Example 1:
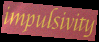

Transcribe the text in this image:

impulsivity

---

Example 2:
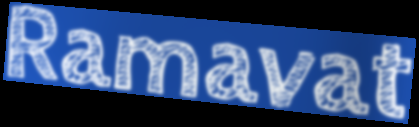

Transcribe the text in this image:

Ramavat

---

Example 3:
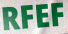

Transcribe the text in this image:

RFEF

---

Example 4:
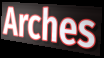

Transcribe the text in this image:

Arches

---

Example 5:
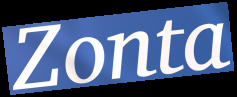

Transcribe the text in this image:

Zonta